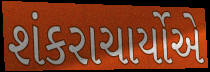
શંકરાચાર્યોએ